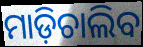
ମାଡ଼ିଚାଲିବ